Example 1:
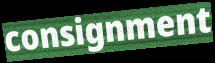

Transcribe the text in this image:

consignment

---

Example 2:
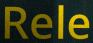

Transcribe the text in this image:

Rele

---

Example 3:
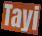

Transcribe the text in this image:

Tayi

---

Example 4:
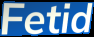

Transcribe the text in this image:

Fetid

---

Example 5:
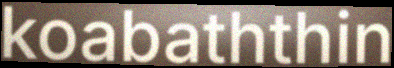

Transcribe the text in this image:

koabaththin